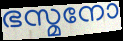
ഭസ്മനോ